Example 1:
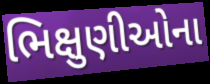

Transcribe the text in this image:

ભિક્ષુણીઓના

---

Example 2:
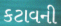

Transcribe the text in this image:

કટાવની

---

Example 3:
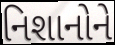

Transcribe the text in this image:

નિશાનોને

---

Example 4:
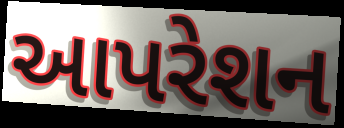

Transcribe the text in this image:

આપરેશન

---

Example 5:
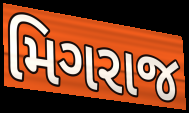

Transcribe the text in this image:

મિગરાજ